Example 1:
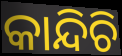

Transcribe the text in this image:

କାନ୍ଦିଚି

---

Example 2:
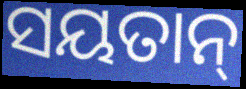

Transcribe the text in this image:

ସୟତାନ୍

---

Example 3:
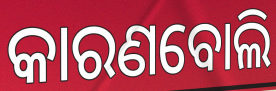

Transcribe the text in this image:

କାରଣବୋଲି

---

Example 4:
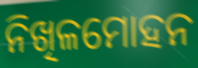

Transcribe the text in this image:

ନିଖିଳମୋହନ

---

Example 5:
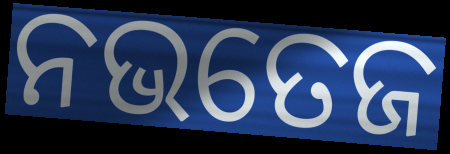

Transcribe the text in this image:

ନଭତେଜ